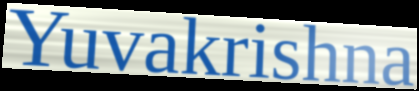
Yuvakrishna